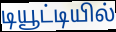
டியூட்டியில்